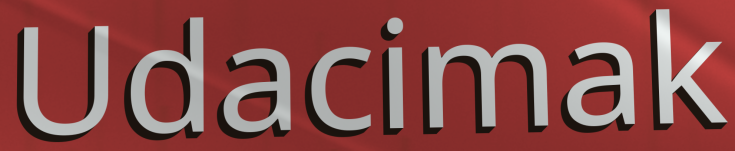
Udacimak